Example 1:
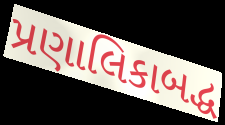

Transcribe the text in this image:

પ્રણાલિકાબદ્ધ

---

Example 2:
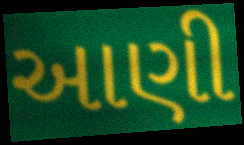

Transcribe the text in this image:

આણી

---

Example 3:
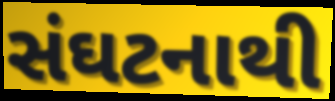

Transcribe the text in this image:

સંઘટનાથી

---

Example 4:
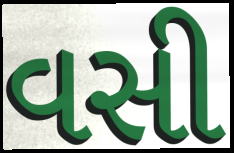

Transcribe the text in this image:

વસી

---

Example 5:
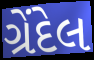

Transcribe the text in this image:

ગ્રેંદેલ